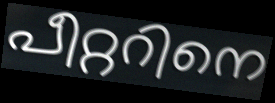
പീറ്ററിനെ